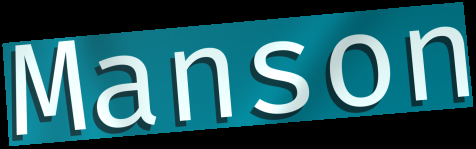
Manson